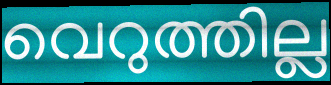
വെറുത്തില്ല